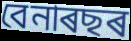
বেনাৰছৰ